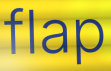
flap